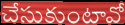
చేసుకుంటావో